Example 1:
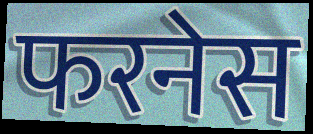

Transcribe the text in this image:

फरनेस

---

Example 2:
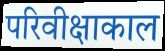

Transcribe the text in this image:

परिवीक्षाकाल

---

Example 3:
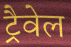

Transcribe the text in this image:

ट्रैवेल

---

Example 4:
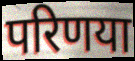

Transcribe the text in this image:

परिणया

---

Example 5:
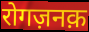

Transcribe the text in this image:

रोगज़नक़